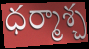
ధర్మాశ్చ